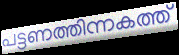
പട്ടണത്തിന്നകത്ത്